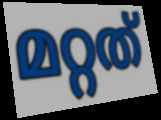
മറ്റത്